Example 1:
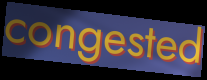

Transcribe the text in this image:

congested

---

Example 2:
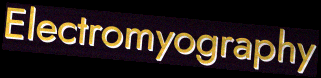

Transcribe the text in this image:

Electromyography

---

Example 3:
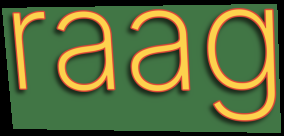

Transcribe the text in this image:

raag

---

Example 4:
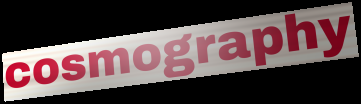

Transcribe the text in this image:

cosmography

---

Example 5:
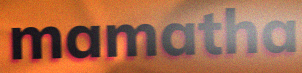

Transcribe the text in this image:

mamatha